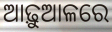
ଆଢ଼ୁଆଳରେ